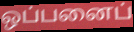
ஒப்பனைப்